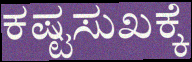
ಕಷ್ಟಸುಖಕ್ಕೆ